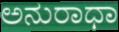
ಅನುರಾಧಾ